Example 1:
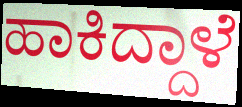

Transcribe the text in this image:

ಹಾಕಿದ್ದಾಳೆ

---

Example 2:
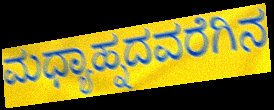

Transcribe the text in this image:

ಮಧ್ಯಾಹ್ನದವರೆಗಿನ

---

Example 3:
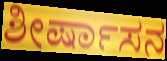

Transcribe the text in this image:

ಶೀರ್ಷಾಸನ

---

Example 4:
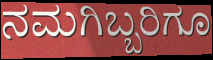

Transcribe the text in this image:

ನಮಗಿಬ್ಬರಿಗೂ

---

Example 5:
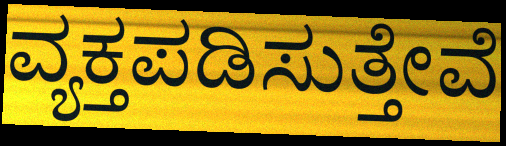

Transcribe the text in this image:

ವ್ಯಕ್ತಪಡಿಸುತ್ತೇವೆ